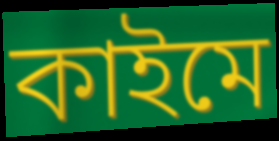
কাইমে